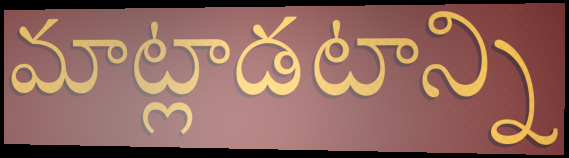
మాట్లాడటాన్ని